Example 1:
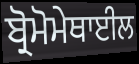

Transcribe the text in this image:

ਬ੍ਰੋਮੋਮੇਥਾਈਲ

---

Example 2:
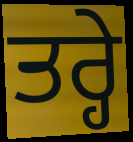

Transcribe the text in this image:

ਤਰ੍ਹੇ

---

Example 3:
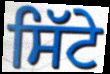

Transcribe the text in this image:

ਸਿੱਟੇ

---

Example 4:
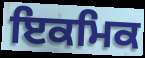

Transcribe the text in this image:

ਇਕਮਿਕ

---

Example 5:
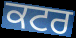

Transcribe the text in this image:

ਕਟਰ